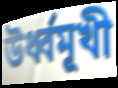
উর্ধ্বমূখী